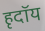
हृदॉय